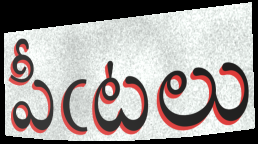
పీఁటలు